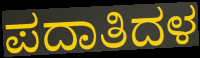
ಪದಾತಿದಳ